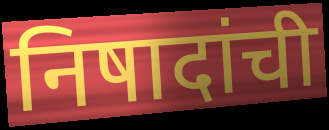
निषादांची